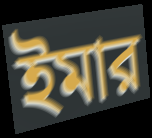
ইমার